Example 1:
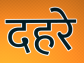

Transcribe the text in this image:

दहरे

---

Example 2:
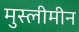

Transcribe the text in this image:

मुस्लीमीन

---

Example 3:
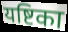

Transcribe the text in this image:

यष्टिका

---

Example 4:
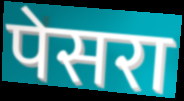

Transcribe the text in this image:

पेसरा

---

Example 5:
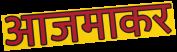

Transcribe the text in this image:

आजमाकर